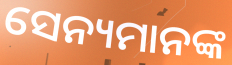
ସେନ୍ୟମାନଙ୍କ